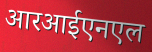
आरआईएनएल